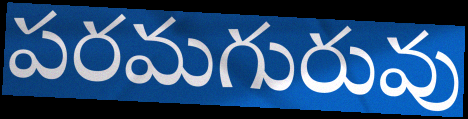
పరమగురువు